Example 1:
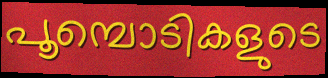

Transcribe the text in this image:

പൂമ്പൊടികളുടെ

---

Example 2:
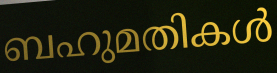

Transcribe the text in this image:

ബഹുമതികൾ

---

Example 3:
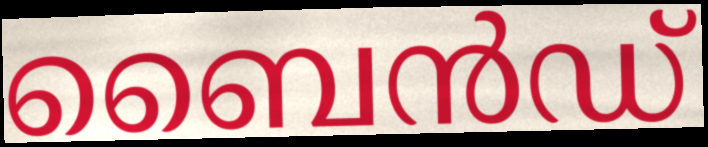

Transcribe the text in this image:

ബൈൻഡ്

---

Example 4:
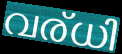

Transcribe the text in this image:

വര്ധി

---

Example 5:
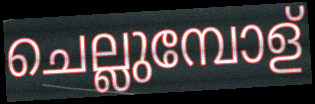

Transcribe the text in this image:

ചെല്ലുമ്പോള്